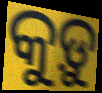
କୁଡ଼ୁ